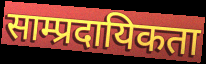
साम्प्रदायिकता